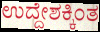
ಉದ್ದೇಶಕ್ಕಿಂತ